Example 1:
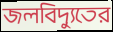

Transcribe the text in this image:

জলবিদ্যুতের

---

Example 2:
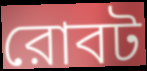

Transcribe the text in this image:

রোবট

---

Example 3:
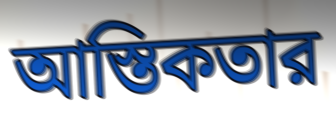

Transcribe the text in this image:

আস্তিকতার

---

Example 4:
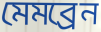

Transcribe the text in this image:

মেমব্রেন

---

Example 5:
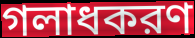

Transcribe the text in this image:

গলাধকরণ